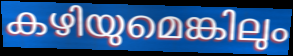
കഴിയുമെങ്കിലും